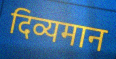
दिव्यमान